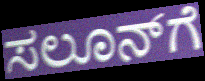
ಸಲೂನ್‍ಗೆ